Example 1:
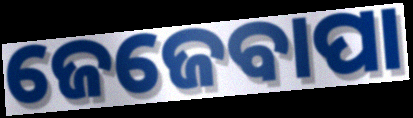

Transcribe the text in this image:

ଜେଜେବାପା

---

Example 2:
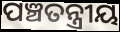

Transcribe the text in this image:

ପଞ୍ଚତନ୍ତ୍ରୀୟ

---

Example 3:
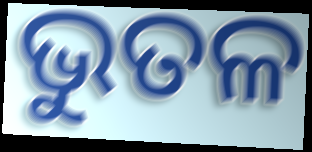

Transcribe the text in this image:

ଭୁତଳ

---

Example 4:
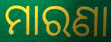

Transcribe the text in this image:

ମାରଣା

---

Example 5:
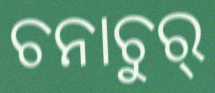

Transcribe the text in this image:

ଚନାଚୁର୍